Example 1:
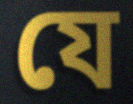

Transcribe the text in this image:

যে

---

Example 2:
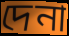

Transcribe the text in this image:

দেনা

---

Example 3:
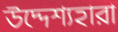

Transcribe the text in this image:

উদ্দেশ্যহারা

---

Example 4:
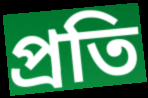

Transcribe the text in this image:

প্রতি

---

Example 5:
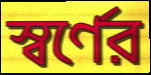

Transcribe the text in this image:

স্বর্ণের